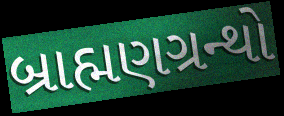
બ્રાહ્મણગ્રન્થો